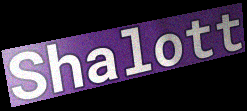
Shalott